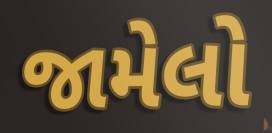
જામેલો